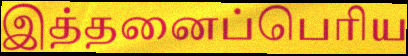
இத்தனைப்பெரிய